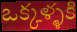
ఒక్కళ్ళకి